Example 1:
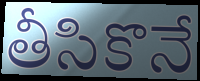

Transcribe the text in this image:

తీసికొనే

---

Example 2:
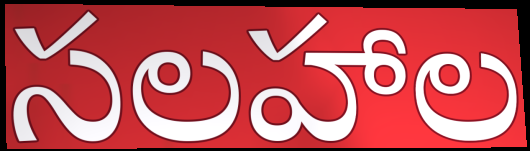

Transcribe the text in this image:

సలహాల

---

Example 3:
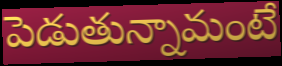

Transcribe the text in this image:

పెడుతున్నామంటే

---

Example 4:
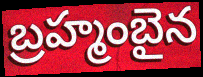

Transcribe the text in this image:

బ్రహ్మంబైన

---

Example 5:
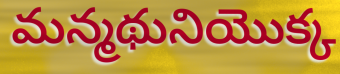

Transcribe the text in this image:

మన్మథునియొక్క